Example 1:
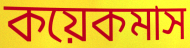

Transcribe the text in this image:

কয়েকমাস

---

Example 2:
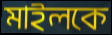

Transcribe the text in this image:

মাইলকে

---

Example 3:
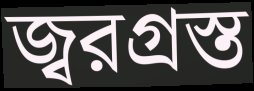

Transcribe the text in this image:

জ্বরগ্রস্ত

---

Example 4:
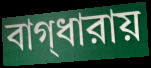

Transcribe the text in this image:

বাগ্‌ধারায়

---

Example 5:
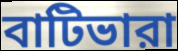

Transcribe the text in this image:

বাটিভারা